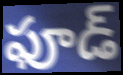
ఫూడ్